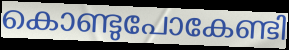
കൊണ്ടുപോകേണ്ടി